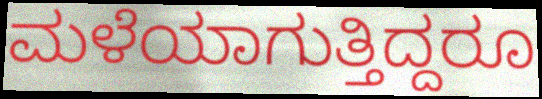
ಮಳೆಯಾಗುತ್ತಿದ್ದರೂ